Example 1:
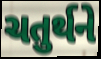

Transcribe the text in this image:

ચતુર્થને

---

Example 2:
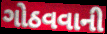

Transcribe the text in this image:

ગોઠવવાની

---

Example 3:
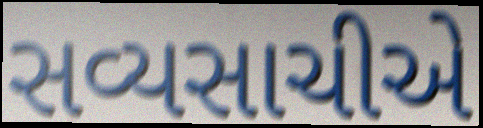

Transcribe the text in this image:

સવ્યસાચીએ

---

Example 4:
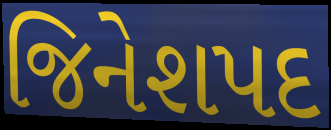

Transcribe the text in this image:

જિનેશપદ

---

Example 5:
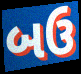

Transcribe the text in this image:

બઉ